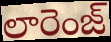
లారెంజ్